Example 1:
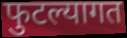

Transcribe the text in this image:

फुटल्यागत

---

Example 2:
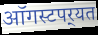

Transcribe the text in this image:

ऑगस्टपर्यत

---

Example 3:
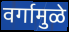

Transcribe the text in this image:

वर्गामुळे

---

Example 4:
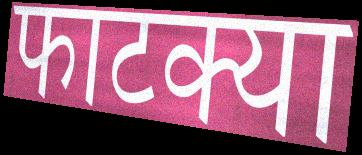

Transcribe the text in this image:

फाटक्या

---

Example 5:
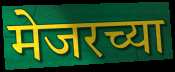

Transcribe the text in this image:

मेजरच्या